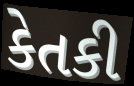
કેતકી